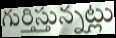
గుర్తిస్తున్నట్లు